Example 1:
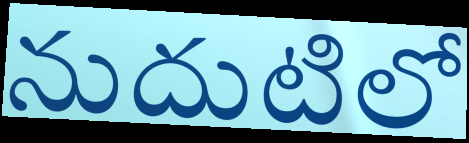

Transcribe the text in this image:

నుదుటిలో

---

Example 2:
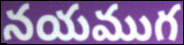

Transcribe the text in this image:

నయముగ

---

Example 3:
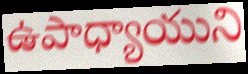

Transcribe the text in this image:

ఉపాధ్యాయుని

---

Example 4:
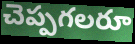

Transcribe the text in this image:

చెప్పగలరూ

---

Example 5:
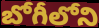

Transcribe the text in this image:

బోగీలోని